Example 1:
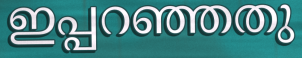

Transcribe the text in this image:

ഇപ്പറഞ്ഞതു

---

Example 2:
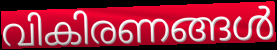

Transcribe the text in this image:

വികിരണങ്ങൾ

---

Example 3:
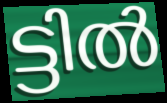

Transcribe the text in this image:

ട്ടിൽ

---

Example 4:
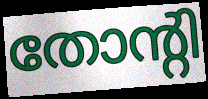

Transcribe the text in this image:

തോന്റി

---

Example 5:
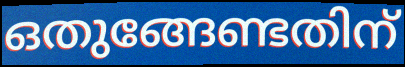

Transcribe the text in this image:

ഒതുങ്ങേണ്ടതിന്